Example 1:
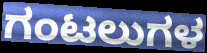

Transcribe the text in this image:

ಗಂಟಲುಗಳ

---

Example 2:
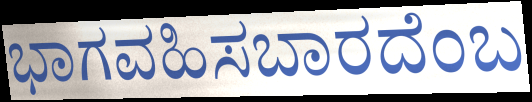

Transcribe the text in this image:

ಭಾಗವಹಿಸಬಾರದೆಂಬ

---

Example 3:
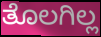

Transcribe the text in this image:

ತೊಲಗಿಲ್ಲ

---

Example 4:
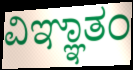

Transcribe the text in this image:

ವಿಞ್ಞಾತಂ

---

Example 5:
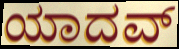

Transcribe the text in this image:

ಯಾದವ್